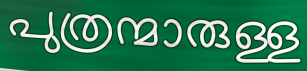
പുത്രന്മാരുള്ള